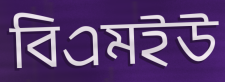
বিএমইউ